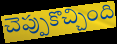
చెప్పుకొచ్చింది